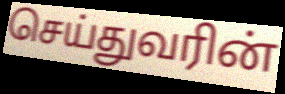
செய்துவரின்